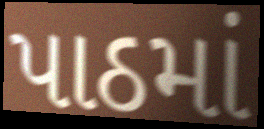
પાઠમાં